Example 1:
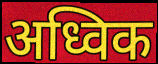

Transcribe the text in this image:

अध्विक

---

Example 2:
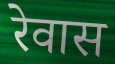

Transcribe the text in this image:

रेवास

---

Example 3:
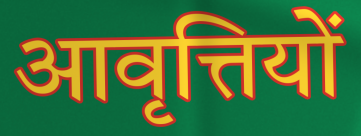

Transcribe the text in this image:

आवृत्तियों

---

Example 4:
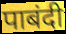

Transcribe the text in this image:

पाबंदी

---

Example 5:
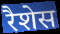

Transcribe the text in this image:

रैशेस